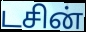
டசின்